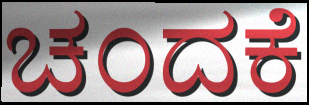
ಚಂದಕೆ